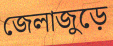
জেলাজুড়ে